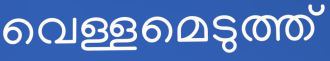
വെള്ളമെടുത്ത്